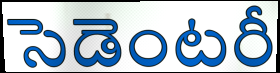
సెడెంటరీ